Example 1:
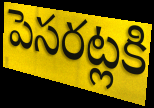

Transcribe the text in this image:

పెసరట్లకి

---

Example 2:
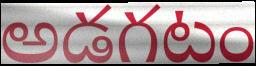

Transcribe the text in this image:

అడగటం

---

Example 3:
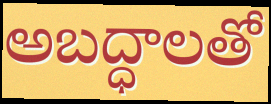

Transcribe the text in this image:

అబద్ధాలతో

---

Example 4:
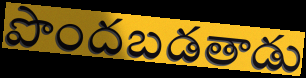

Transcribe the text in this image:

పొందబడతాడు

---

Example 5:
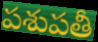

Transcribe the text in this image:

పశుపతీ